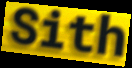
Sith